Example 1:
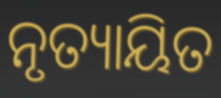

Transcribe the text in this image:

ନୃତ୍ୟାୟିତ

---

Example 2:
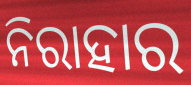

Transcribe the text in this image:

ନିରାହାର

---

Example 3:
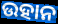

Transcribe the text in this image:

ଉହାନ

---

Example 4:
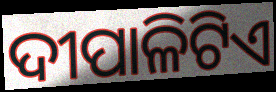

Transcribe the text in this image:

ଦୀପାଳିଟିଏ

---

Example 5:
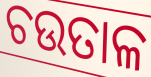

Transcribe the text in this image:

ଚଉତାଳ